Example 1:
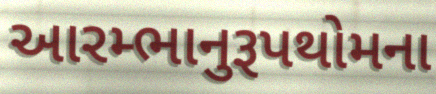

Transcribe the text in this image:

આરમ્ભાનુરૂપથોમના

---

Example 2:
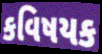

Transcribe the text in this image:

કવિષયક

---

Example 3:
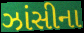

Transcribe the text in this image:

ઝાંસીના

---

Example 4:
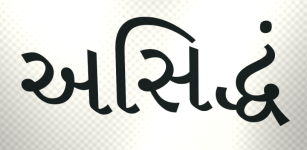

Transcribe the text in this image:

અસિદ્ધં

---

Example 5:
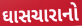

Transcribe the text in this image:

ઘાસચારાનો